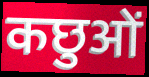
कछुओं